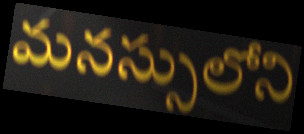
మనస్సులోని